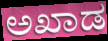
ಅಖಾಡ